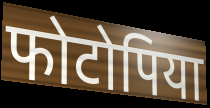
फोटोपिया